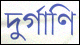
দুর্গাণি